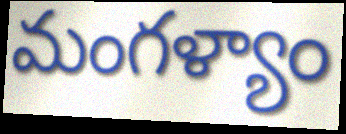
మంగళ్యాం